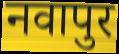
नवापुर